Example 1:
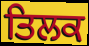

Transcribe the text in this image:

ਤਿਲਕ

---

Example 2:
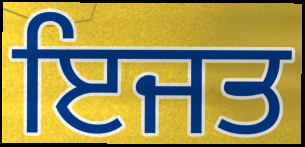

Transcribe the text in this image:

ਇਜਤ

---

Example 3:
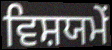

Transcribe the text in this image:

ਵਿਸ਼ਯਮੇਂ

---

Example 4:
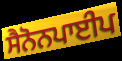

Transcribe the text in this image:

ਸੈਨੋਨਪਾਈਪ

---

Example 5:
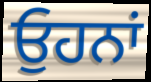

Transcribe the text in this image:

ਓੁਹਨਾਂ